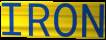
IRON